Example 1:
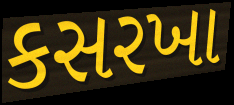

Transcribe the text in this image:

કસરખા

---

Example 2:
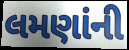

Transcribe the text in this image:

લમણાંની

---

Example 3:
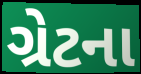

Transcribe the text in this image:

ગ્રેટના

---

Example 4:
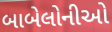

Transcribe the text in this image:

બાબેલોનીઓ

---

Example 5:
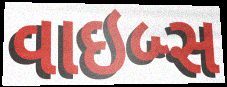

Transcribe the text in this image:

વાઇબ્સ